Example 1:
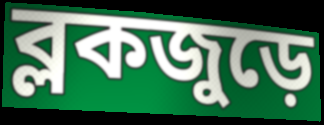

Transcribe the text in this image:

ব্লকজুড়ে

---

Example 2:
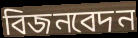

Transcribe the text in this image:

বিজনবেদন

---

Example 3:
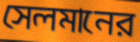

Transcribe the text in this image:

সেলমানের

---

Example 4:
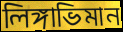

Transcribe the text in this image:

লিঙ্গাভিমান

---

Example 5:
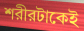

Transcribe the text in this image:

শরীরটাকেই